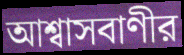
আশ্বাসবাণীর